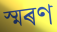
স্মৰণ